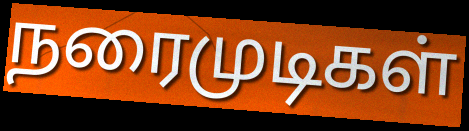
நரைமுடிகள்